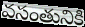
వసంతునికి